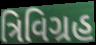
ત્રિવિગ્રહ